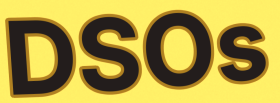
DSOs